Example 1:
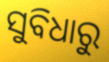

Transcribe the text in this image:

ସୁବିଧାରୁ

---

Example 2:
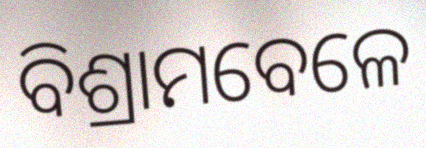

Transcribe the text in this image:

ବିଶ୍ରାମବେଳେ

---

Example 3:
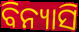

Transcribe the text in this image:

ବିନ୍ୟାସି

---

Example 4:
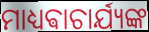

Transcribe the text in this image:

ମାଧ୍ୟଵାଚାର୍ଯ୍ୟଙ୍କ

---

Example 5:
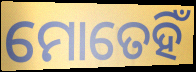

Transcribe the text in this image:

ମୋତେହିଁ